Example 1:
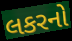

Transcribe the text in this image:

લકરનો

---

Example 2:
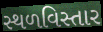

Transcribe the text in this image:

સ્થળવિસ્તાર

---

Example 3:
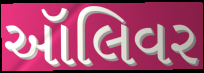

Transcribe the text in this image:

ઑલિવર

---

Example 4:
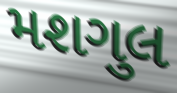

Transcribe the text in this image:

મશગુલ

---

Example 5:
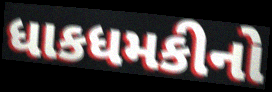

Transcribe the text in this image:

ધાકધમકીનો